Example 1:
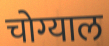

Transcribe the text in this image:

चोग्याल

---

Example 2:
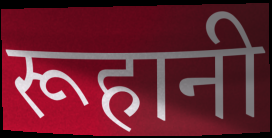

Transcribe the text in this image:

रूहानी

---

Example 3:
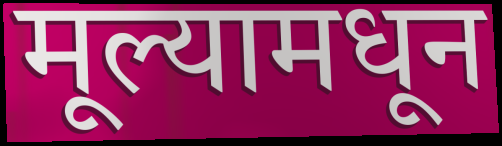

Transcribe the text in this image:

मूल्यामधून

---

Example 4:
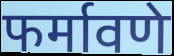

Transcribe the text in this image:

फर्मावणे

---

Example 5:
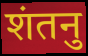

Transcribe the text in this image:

शंतनु